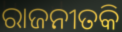
ରାଜନୀତକି